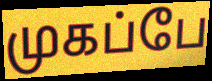
முகப்பே